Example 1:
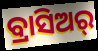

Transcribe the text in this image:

ବ୍ରାସିଅର୍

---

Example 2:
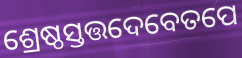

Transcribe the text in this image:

ଶ୍ରେଷ୍ଠସ୍ତତ୍ତଦେବେତପେ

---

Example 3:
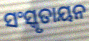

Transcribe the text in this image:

ସଂସ୍କୃତାୟନ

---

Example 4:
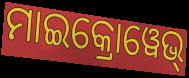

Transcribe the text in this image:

ମାଇକ୍ରୋୱେଭ୍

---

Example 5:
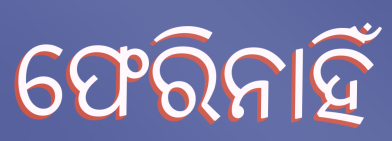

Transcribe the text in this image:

ଫେରିନାହିଁ